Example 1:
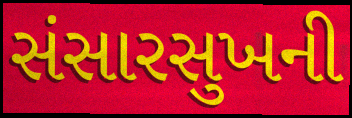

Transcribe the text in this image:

સંસારસુખની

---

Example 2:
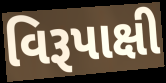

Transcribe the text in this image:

વિરૂપાક્ષી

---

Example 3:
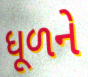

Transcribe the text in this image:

ધૂળને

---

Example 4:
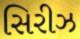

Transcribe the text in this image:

સિરીઝ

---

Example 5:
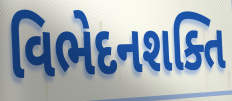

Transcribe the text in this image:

વિભેદનશક્તિ